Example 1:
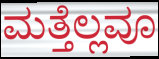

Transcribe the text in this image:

ಮತ್ತೆಲ್ಲವೂ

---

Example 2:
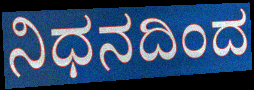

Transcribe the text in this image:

ನಿಧನದಿಂದ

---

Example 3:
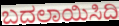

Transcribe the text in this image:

ಬದಲಾಯಿಸಿದಿ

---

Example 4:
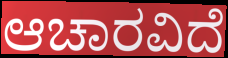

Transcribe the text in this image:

ಆಚಾರವಿದೆ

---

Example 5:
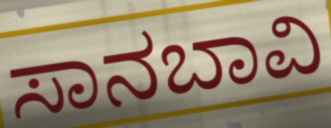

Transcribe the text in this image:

ಸಾನಬಾವಿ